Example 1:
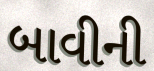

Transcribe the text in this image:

બાવીની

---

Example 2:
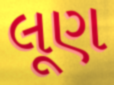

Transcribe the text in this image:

લૂણ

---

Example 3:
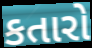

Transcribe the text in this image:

કતારો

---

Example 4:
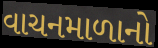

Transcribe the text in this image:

વાચનમાળાનો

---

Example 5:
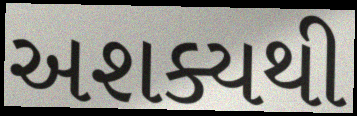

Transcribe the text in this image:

અશક્યથી